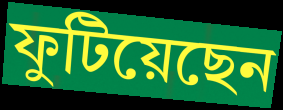
ফুটিয়েছেন